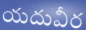
యదువీర